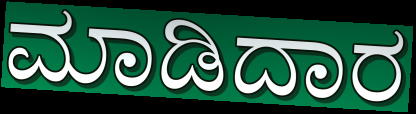
ಮಾಡಿದಾರ